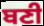
ਬਣੀ